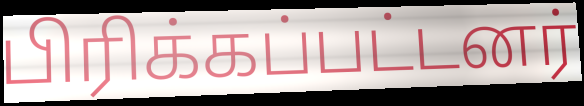
பிரிக்கப்பட்டனர்